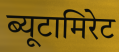
ब्यूटामिरेट